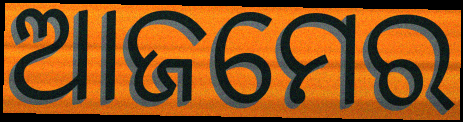
ଆଜମେର